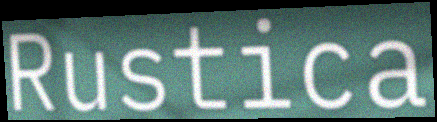
Rustica